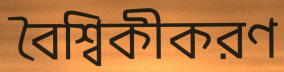
বৈশ্বিকীকরণ